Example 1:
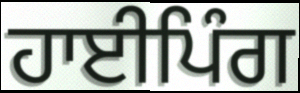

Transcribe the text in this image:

ਹਾਈਪਿੰਗ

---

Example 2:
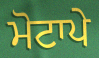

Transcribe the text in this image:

ਮੋਟਾਪੇ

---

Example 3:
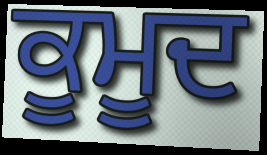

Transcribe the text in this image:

ਕੂਮੂਦ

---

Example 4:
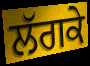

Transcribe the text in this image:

ਲੱਗਕੇ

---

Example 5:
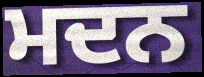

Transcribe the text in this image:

ਮਦਨ